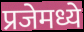
प्रजेमध्ये